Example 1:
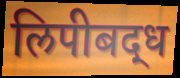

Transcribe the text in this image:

लिपीबद्ध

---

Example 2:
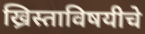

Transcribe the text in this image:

ख्रिस्ताविषयीचे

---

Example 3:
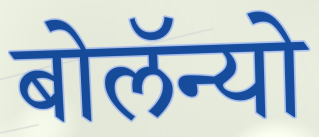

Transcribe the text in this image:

बोलॅन्यो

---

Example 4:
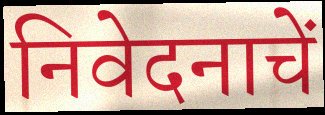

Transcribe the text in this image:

निवेदनाचें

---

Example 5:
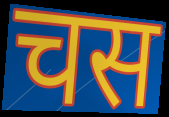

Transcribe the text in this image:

चस